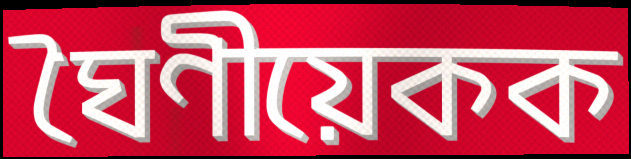
ঘৈণীয়েকক